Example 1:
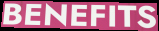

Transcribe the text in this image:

BENEFITS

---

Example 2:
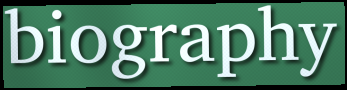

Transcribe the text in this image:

biography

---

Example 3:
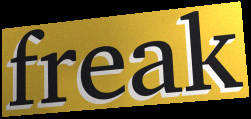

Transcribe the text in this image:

freak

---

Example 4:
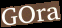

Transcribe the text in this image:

GOra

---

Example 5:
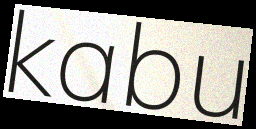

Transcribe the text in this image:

kabu